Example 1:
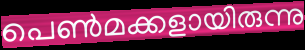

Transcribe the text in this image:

പെൺമക്കളായിരുന്നു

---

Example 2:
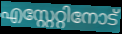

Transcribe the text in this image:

എസ്റ്റേറ്റിനോട്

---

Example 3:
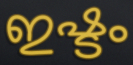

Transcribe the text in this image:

ഇഷ്ടം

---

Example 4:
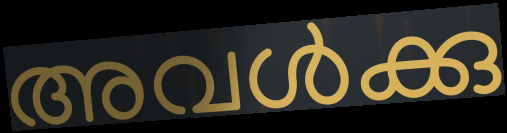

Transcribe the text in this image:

അവൾക്കു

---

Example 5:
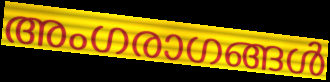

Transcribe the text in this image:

അംഗരാഗങ്ങൾ